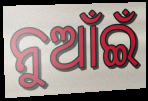
ନୁଆଁଇଁ